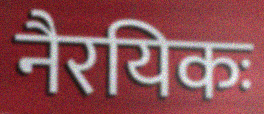
नैरयिकः